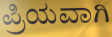
ಪ್ರಿಯವಾಗಿ